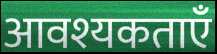
आवश्यकताएँ